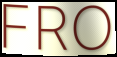
FRO